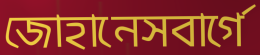
জোহানেসবার্গে